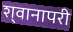
श्वानापरी